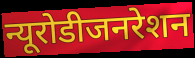
न्यूरोडीजनरेशन